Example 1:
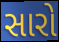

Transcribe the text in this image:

સારો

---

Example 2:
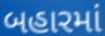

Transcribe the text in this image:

બહારમાં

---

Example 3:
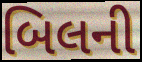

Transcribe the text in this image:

બિલની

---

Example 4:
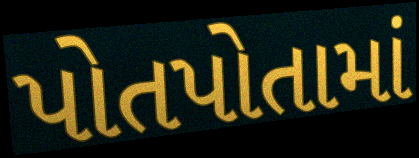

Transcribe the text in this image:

પોતપોતામાં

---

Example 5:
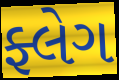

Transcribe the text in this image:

ફ્લેગ